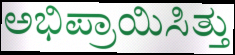
ಅಭಿಪ್ರಾಯಿಸಿತ್ತು